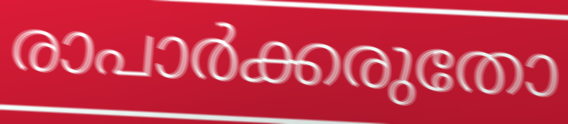
രാപാർക്കരുതോ